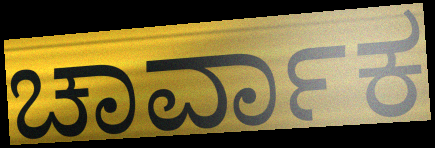
ಚಾರ್ವಾಕ